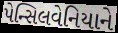
પેન્સિલવેનિયાને